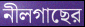
নীলগাছের